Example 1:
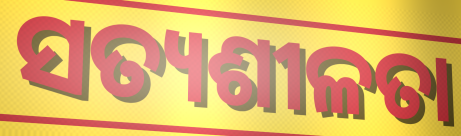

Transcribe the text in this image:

ସତ୍ୟଶୀଳତା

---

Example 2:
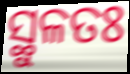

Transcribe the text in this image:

ସ୍ଥୁଳତଃ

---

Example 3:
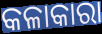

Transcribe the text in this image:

କଳାକାରା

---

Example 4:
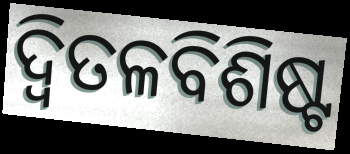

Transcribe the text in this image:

ଦ୍ୱିତଳବିଶିଷ୍ଟ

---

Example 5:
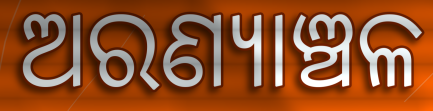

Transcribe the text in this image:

ଅରଣ୍ୟାଞ୍ଚଳ